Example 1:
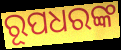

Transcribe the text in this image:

ରୂପଧରଙ୍କ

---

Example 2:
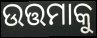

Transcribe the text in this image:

ଉତ୍ତମାକୁ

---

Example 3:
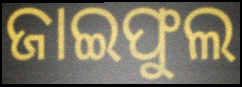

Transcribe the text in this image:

ଜାଇଫୁଲ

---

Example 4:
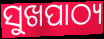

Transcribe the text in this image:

ସୁଖପାଠ୍ୟ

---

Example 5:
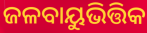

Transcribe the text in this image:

ଜଳବାୟୁଭିତ୍ତିକ